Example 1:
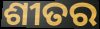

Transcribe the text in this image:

ଶୀତର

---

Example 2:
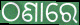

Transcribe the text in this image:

ଠଣାରେ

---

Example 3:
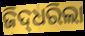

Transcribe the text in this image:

ଜିଦ୍‌ଧରିଲା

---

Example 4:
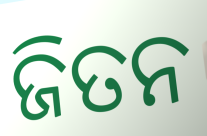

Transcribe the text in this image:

ଜିତନ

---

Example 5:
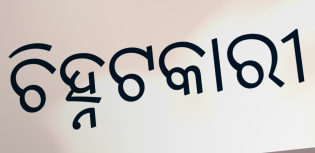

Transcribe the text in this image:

ଚିହ୍ନଟକାରୀ